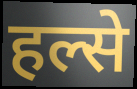
हल्से